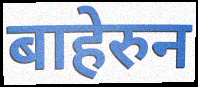
बाहेरुन